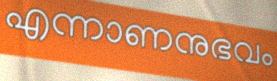
എന്നാണനുഭവം